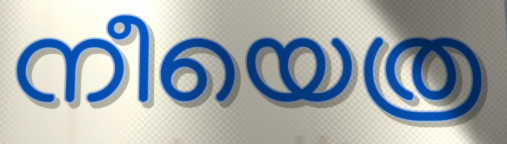
നീയെത്ര